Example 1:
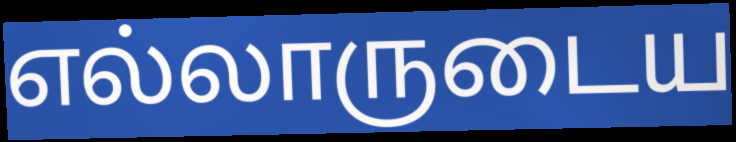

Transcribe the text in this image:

எல்லாருடைய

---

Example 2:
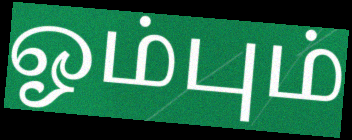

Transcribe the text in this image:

ஓம்பும்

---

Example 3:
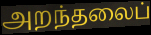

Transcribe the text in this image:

அறந்தலைப்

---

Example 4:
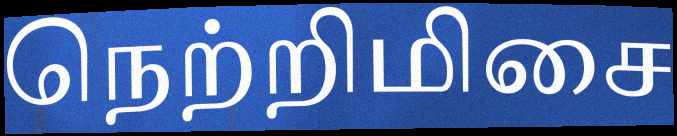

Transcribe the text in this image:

நெற்றிமிசை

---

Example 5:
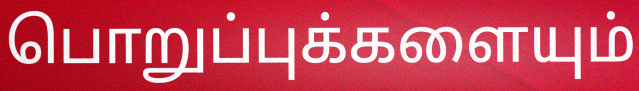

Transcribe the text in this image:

பொறுப்புக்களையும்